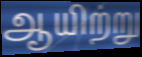
ஆயிற்று